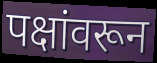
पक्षांवरून